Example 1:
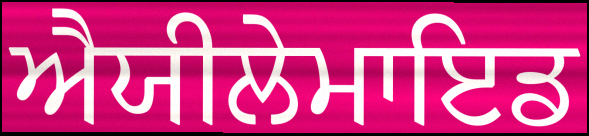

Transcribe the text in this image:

ਐਯੀਲੇਮਾਇਡ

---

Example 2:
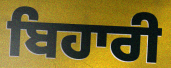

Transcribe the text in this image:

ਬਿਹਾਰੀ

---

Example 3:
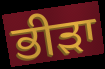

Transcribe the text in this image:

ਭੀੜਾ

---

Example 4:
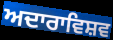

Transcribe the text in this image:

ਅਦਾਰਾਵਿਸ਼ਵ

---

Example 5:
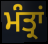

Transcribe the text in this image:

ਮੰਤ੍ਰਾਂ